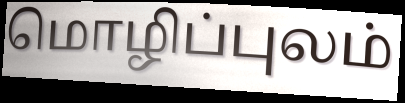
மொழிப்புலம்